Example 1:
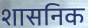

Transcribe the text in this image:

शासनिक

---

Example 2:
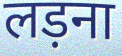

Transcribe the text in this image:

लड़ना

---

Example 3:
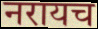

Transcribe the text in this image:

नरायच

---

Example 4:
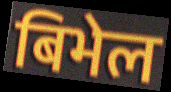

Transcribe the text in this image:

बिभेल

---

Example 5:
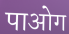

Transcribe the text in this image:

पाओग